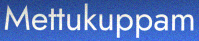
Mettukuppam